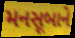
મનસૂબાને